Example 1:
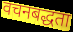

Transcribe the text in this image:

वचनबद्धता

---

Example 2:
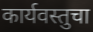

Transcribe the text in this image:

कार्यवस्तुचा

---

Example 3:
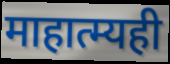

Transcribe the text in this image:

माहात्म्यही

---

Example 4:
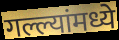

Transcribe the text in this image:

गल्ल्यांमध्ये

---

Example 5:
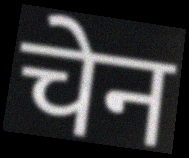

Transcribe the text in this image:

चेन